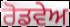
ਰੋਡਵੇਅ